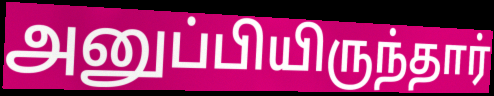
அனுப்பியிருந்தார்